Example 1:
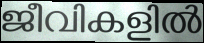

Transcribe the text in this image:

ജീവികളിൽ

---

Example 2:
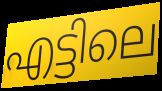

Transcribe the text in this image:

എട്ടിലെ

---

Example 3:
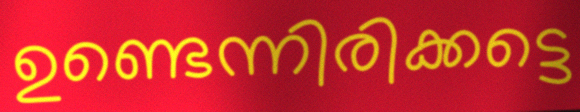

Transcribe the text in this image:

ഉണ്ടെന്നിരിക്കട്ടെ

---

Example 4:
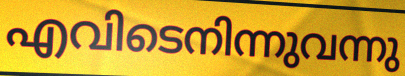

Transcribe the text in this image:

എവിടെനിന്നുവന്നു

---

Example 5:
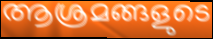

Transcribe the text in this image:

ആശ്രമങ്ങളുടെ